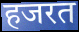
हजरत